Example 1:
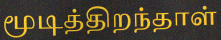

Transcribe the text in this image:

மூடித்திறந்தாள்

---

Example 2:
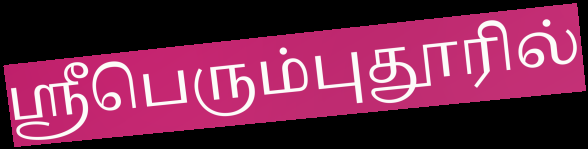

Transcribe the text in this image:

ஸ்ரீபெரும்புதூரில்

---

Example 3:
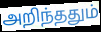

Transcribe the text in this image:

அறிந்ததும்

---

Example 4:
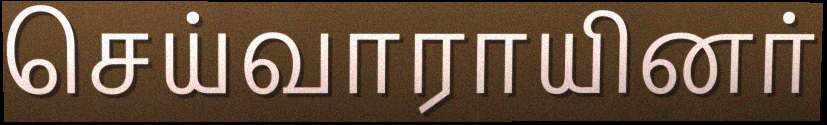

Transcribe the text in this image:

செய்வாராயினர்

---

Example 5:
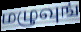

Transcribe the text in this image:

மழுவுங்